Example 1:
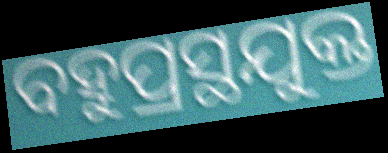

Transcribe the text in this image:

ବହୁପ୍ରସ୍ଥଯୁକ୍ତ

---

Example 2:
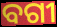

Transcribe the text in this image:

ବଗୀ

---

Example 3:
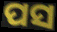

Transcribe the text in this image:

ପସ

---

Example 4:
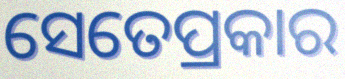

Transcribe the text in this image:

ସେତେପ୍ରକାର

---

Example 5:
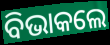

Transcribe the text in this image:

ବିଭାକଲେ